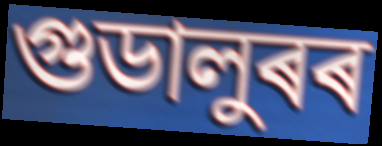
গুডালুৰৰ